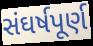
સંઘર્ષપૂર્ણ